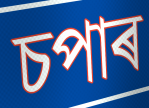
চপাৰ